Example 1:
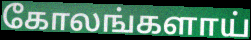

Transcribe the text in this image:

கோலங்களாய்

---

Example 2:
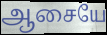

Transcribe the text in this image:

ஆசையே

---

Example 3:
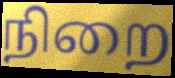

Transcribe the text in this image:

நிறை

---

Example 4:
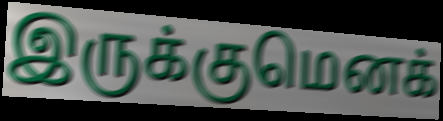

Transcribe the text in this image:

இருக்குமெனக்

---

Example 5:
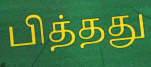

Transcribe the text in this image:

பித்தது